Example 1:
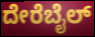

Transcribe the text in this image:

ದೇರೆಬೈಲ್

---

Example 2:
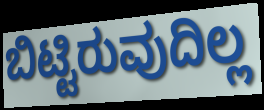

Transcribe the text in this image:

ಬಿಟ್ಟಿರುವುದಿಲ್ಲ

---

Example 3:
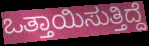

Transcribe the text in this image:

ಒತ್ತಾಯಿಸುತ್ತಿದ್ದೆ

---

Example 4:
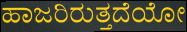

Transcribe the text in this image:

ಹಾಜರಿರುತ್ತದೆಯೋ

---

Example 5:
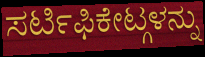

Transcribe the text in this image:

ಸರ್ಟಿಫಿಕೇಟ್ಗಳನ್ನು